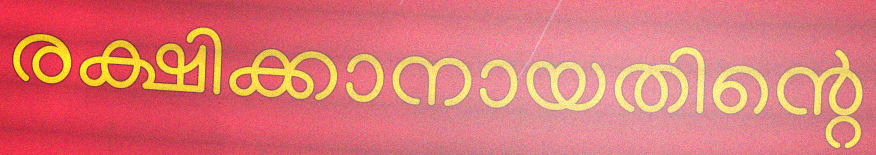
രക്ഷിക്കാനായതിന്റെ